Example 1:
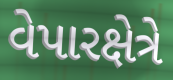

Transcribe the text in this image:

વેપારક્ષેત્રે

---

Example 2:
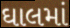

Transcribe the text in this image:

ઘાલમાં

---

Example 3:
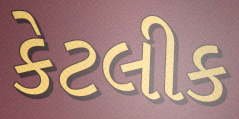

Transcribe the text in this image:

કેટલીક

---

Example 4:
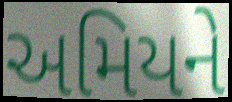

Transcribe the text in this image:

અમિયને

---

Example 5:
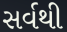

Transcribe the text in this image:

સર્વથી